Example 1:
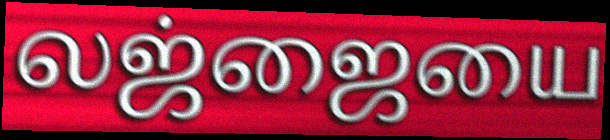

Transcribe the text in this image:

லஜ்ஜையை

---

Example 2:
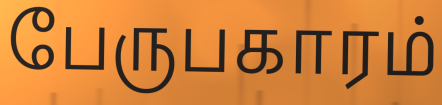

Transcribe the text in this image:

பேருபகாரம்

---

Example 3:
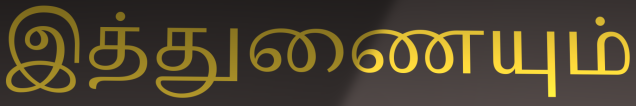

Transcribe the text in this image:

இத்துணையும்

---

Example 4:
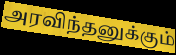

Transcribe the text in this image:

அரவிந்தனுக்கும்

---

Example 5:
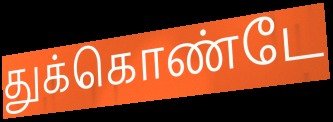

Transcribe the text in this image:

துக்கொண்டே